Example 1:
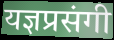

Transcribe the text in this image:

यज्ञप्रसंगी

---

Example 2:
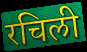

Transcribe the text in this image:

रचिली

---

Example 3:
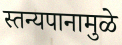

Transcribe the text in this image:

स्तन्यपानामुळे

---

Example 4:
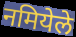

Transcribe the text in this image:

नमियेले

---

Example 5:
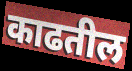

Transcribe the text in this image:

काढतील